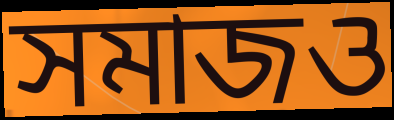
সমাজও